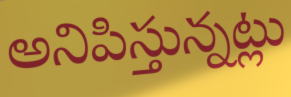
అనిపిస్తున్నట్లు